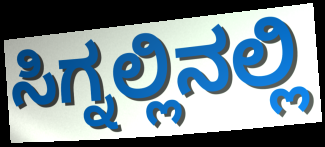
ಸಿಗ್ನಲ್ಲಿನಲ್ಲಿ